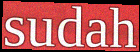
sudah